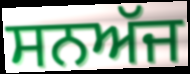
ਸਨਅੱਜ